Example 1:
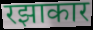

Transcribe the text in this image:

रझाकार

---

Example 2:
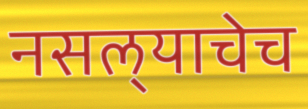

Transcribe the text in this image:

नसल्याचेच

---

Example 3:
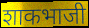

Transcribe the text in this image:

शाकभाजी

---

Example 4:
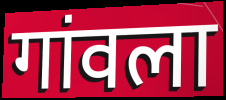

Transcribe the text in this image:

गांवला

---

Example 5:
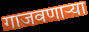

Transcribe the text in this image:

गाजवणाऱ्या